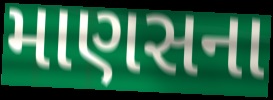
માણસના